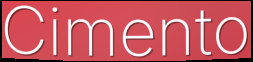
Cimento